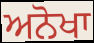
ਅਨੋਖਾ